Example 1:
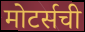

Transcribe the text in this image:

मोटर्सची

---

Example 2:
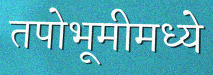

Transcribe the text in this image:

तपोभूमीमध्ये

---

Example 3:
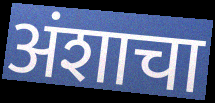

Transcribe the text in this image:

अंशाचा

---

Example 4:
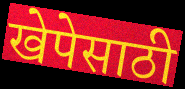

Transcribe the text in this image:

खेपेसाठी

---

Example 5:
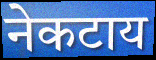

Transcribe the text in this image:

नेकटाय